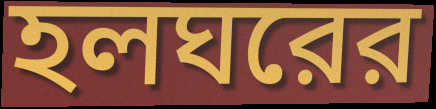
হলঘরের